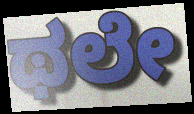
ಥಲೇ